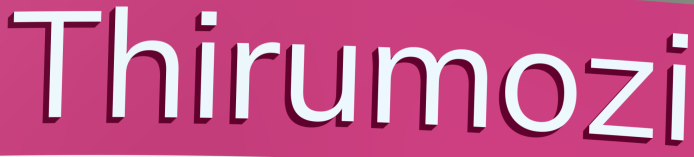
Thirumozi